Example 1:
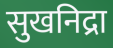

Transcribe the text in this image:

सुखनिद्रा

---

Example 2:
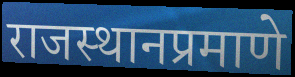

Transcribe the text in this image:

राजस्थानप्रमाणे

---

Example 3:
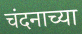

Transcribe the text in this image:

चंदनाच्या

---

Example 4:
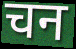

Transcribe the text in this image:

चन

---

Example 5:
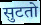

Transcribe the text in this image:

सुटतो